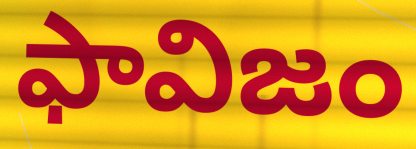
ఫావిజం